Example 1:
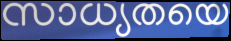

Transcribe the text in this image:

സാധ്യതയെ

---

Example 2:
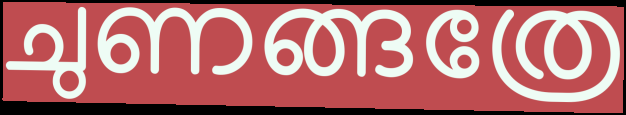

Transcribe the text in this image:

ചുണങ്ങത്രേ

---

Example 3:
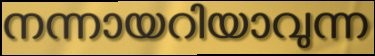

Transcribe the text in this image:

നന്നായറിയാവുന്ന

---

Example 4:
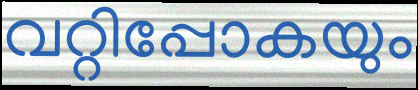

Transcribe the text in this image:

വറ്റിപ്പോകയും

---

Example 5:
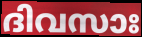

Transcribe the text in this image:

ദിവസാഃ